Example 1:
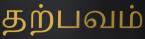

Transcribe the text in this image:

தற்பவம்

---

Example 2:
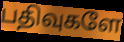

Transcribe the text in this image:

பதிவுகளே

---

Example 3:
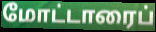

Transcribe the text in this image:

மோட்டாரைப்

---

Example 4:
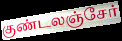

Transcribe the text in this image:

குண்டலஞ்சேர்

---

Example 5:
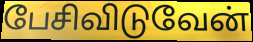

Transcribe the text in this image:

பேசிவிடுவேன்